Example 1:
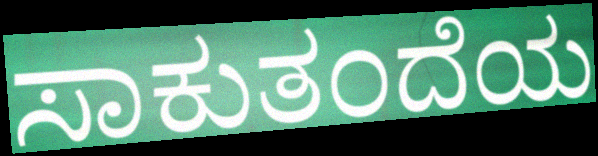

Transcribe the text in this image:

ಸಾಕುತಂದೆಯ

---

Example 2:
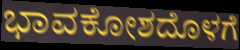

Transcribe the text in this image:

ಭಾವಕೋಶದೊಳಗೆ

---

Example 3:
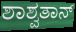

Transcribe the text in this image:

ಶಾಶ್ವತಾನ್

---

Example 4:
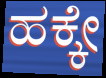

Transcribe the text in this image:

ಹಕ್ಕೇ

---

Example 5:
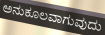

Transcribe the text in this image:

ಅನುಕೂಲವಾಗುವುದು